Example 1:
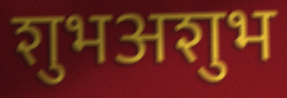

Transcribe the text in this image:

शुभअशुभ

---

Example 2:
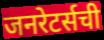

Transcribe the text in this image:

जनरेटर्सची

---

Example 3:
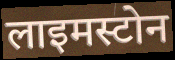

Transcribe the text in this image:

लाइमस्टोन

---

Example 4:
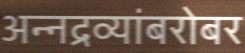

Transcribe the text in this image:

अन्नद्रव्यांबरोबर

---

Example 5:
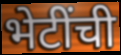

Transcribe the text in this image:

भेटींची